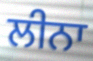
ਲੀਨਾ